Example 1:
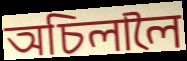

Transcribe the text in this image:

অচিলালৈ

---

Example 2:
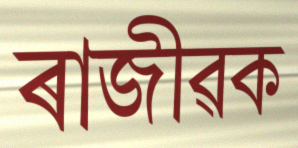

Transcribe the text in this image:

ৰাজীৱক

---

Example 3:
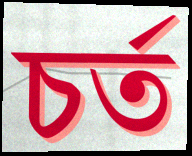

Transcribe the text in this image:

চৰ্ত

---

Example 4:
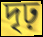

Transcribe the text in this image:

দৃঢ়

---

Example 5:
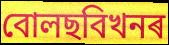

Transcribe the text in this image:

বোলছবিখনৰ